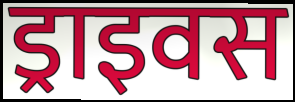
ड्राइवस